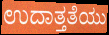
ಉದಾತ್ತತೆಯು